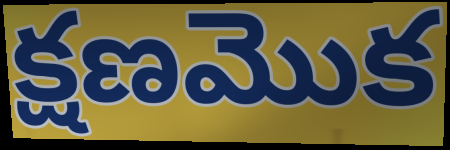
క్షణమొక